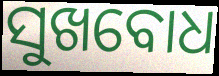
ସୁଖବୋଧ